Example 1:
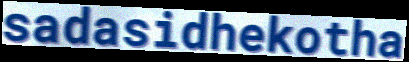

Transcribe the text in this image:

sadasidhekotha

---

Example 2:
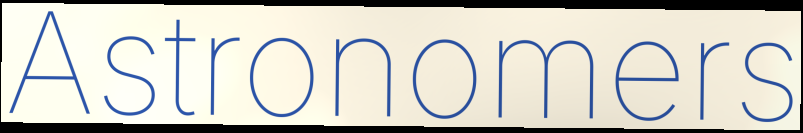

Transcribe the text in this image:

Astronomers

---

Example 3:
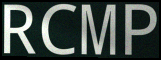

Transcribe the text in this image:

RCMP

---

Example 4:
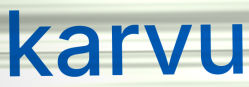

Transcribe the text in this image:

karvu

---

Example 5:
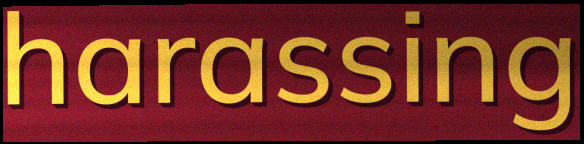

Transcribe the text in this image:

harassing